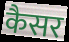
कैसर